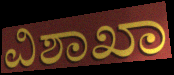
ವಿಶಾಖಾ